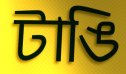
টাঙি